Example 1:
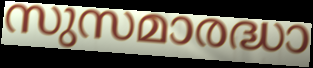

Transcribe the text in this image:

സുസമാരദ്ധാ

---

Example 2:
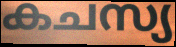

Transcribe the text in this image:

കചസ്യ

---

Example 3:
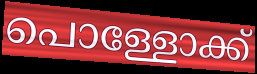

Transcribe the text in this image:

പൊള്ളോക്ക്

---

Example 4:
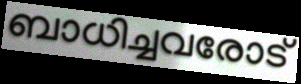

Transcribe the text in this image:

ബാധിച്ചവരോട്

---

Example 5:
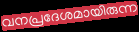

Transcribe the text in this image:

വനപ്രദേശമായിരുന്ന